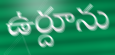
ఉర్దూను